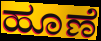
ಹೂಣೆ